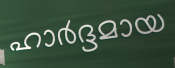
ഹാർദ്ദമായ